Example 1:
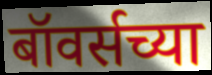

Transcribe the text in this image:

बॉवर्सच्या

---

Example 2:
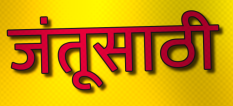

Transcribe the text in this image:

जंतूसाठी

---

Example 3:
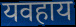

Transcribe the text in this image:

यवहाय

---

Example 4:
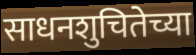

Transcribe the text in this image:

साधनशुचितेच्या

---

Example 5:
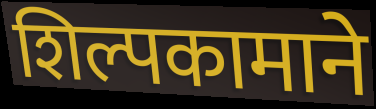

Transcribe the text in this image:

शिल्पकामाने